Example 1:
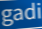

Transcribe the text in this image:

gadi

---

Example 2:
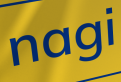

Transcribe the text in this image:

nagi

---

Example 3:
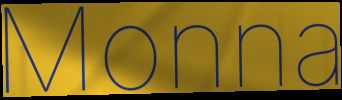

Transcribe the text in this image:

Monna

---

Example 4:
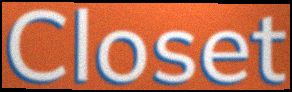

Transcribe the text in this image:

Closet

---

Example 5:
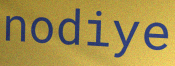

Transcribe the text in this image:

nodiye